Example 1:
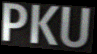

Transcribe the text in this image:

PKU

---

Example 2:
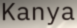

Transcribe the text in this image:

Kanya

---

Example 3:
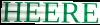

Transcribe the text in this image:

HEERE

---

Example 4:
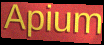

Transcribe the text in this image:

Apium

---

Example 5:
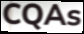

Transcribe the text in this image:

CQAs